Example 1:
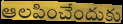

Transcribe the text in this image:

ఆలపించేందుకు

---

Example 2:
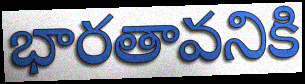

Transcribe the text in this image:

భారతావనికి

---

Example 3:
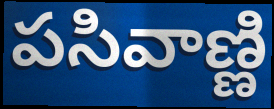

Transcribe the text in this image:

పసివాణ్ణి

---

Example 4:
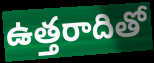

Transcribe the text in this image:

ఉత్తరాదితో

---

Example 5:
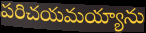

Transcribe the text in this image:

పరిచయమయ్యాను